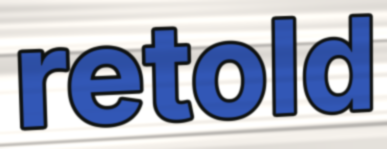
retold